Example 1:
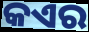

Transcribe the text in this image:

କଏର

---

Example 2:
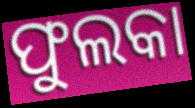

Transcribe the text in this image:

ଫୁଲକା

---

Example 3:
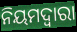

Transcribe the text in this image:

ନିୟମଦ୍ଵାରା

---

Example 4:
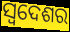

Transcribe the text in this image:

ସ୍ଵଦେଶର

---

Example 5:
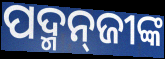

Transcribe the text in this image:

ପଦ୍ମନ୍‌ଜୀଙ୍କ